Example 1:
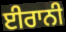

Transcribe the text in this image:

ਈਰਾਨੀ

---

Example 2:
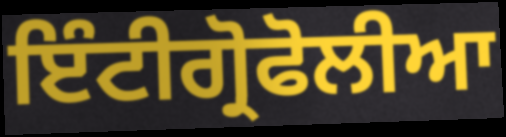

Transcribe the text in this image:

ਇੰਟੀਗ੍ਰੋਫੋਲੀਆ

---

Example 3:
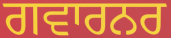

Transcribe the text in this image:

ਗਵਾਰਨਰ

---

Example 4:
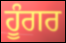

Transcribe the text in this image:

ਹੂੰਗਰ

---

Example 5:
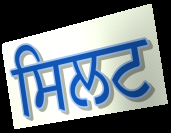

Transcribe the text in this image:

ਸਿਲਟ